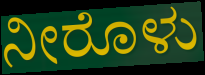
ನೀರೊಳು